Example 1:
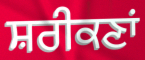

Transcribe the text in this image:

ਸ਼ਰੀਕਣਾਂ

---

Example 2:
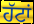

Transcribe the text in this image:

ਹੱਟਾਂ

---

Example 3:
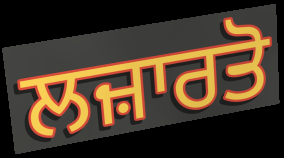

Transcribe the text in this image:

ਲਜ਼ਾਰਤੋ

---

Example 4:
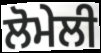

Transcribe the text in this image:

ਲੋਮੇਲੀ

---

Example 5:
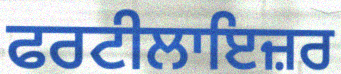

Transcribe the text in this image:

ਫਰਟੀਲਾਇਜ਼ਰ